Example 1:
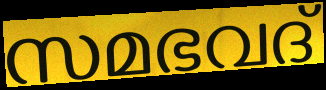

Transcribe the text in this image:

സമഭവദ്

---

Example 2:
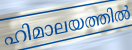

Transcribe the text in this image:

ഹിമാലയത്തിൽ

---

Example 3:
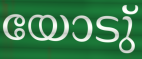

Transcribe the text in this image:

യോടു്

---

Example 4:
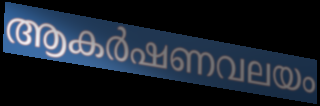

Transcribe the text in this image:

ആകർഷണവലയം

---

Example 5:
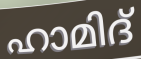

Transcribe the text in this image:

ഹാമിദ്